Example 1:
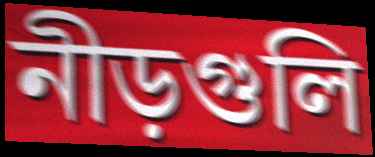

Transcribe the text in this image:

নীড়গুলি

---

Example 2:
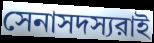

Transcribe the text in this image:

সেনাসদস্যরাই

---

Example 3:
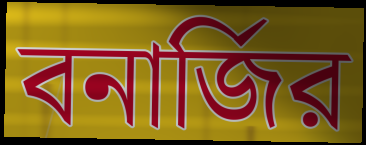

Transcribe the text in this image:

বনার্জির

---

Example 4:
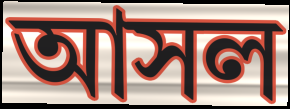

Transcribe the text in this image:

আসল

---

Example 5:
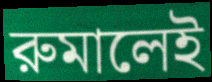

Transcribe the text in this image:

রুমালেই